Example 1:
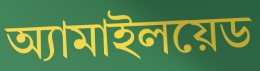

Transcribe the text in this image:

অ্যামাইলয়েড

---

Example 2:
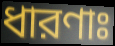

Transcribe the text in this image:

ধারণাঃ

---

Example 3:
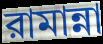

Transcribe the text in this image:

রামান্না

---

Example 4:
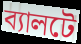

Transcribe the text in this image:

ব্যালটে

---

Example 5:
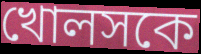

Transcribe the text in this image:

খোলসকে